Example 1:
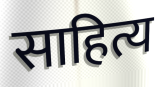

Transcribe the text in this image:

साहित्य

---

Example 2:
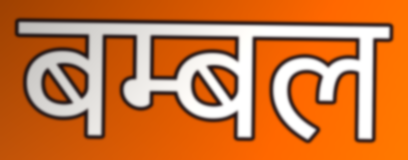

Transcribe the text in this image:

बम्बल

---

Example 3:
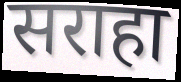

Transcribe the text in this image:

सराहा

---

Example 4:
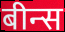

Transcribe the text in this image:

बीन्स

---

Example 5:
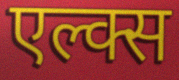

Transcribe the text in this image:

एल्क्स